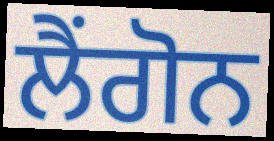
ਲੈਂਗੋਨ